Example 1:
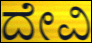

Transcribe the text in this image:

ದೇವಿ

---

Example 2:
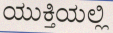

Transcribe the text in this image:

ಯುಕ್ತಿಯಲ್ಲಿ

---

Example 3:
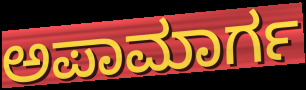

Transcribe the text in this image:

ಅಪಾಮಾರ್ಗ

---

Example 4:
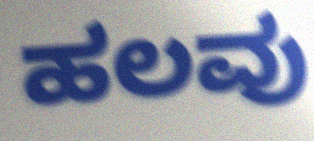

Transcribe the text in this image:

ಹಲವು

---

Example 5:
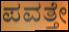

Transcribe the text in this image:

ಪವತ್ತೇ